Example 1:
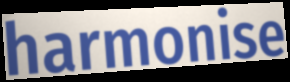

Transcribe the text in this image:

harmonise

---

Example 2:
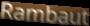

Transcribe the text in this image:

Rambaut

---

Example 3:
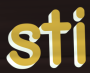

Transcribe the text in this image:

sti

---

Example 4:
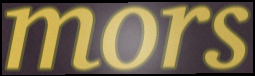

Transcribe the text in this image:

mors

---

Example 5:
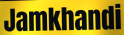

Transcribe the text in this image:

Jamkhandi